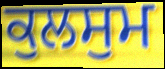
ਕੁਲਸੁਮ